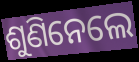
ଶୁଣିନେଲେ